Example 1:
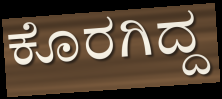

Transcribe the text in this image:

ಕೊರಗಿದ್ದ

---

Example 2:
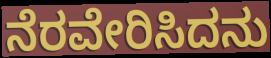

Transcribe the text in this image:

ನೆರವೇರಿಸಿದನು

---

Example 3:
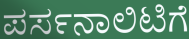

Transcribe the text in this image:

ಪರ್ಸನಾಲಿಟಿಗೆ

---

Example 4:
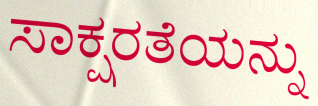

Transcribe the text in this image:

ಸಾಕ್ಷರತೆಯನ್ನು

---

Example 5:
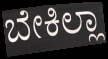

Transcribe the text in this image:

ಬೇಕಿಲ್ಲಾ